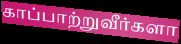
காப்பாற்றுவீர்களா